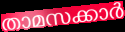
താമസക്കാർ